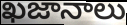
ఖజానాలు